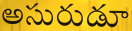
అసురుడూ